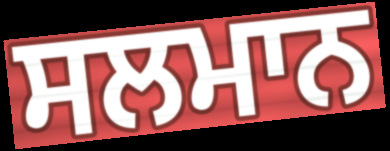
ਸਲਮਾਨ